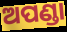
ଅପଣ୍ଡା